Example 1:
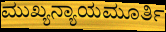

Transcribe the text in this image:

ಮುಖ್ಯನ್ಯಾಯಮೂರ್ತಿ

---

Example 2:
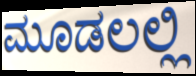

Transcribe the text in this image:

ಮೂಡಲಲ್ಲಿ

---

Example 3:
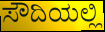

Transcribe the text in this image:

ಸೌದಿಯಲ್ಲಿ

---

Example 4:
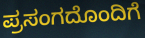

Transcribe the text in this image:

ಪ್ರಸಂಗದೊಂದಿಗೆ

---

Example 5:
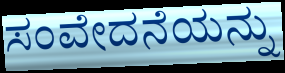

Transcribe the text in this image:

ಸಂವೇದನೆಯನ್ನು